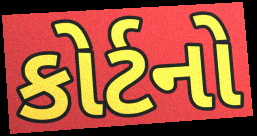
કોર્ટનો